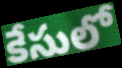
కేసులో